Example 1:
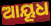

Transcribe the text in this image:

ଆୟୂଧ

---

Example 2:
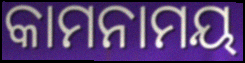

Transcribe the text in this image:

କାମନାମୟ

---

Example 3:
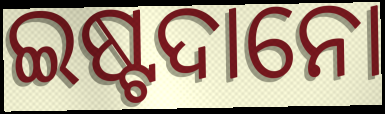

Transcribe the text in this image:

ଇଷ୍ଟଦାନୋ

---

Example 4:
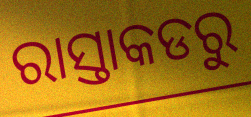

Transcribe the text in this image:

ରାସ୍ତାକଡରୁ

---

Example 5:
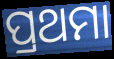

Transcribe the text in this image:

ପ୍ରଥମା